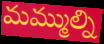
మమ్ముల్ని